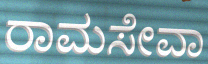
ರಾಮಸೇವಾ